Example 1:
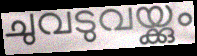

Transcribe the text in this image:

ചുവടുവയ്ക്കും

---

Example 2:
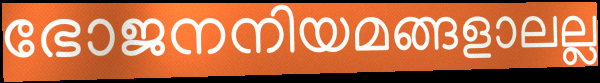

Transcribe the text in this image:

ഭോജനനിയമങ്ങളാലല്ല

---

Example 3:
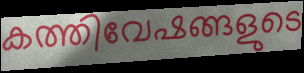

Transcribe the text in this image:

കത്തിവേഷങ്ങളുടെ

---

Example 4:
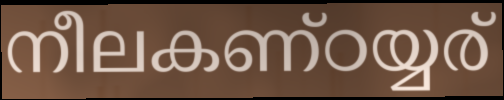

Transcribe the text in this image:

നീലകണ്ഠയ്യര്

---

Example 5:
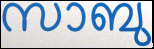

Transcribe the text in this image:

സാബു